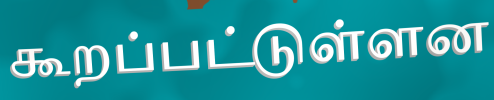
கூறப்பட்டுள்ளன